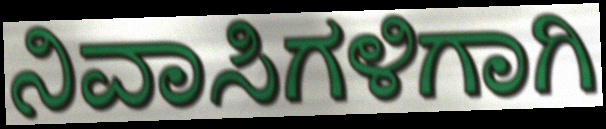
ನಿವಾಸಿಗಳಿಗಾಗಿ